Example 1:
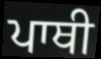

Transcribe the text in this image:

ਪਾਥੀ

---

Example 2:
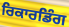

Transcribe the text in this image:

ਰਿਕਾਰਡਿੰਗ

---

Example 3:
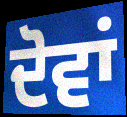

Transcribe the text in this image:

ਦੋਵਾਂ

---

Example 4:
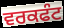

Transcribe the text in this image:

ਵਰਕਫੰਟ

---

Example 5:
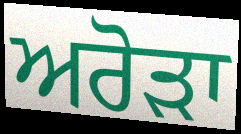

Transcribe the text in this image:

ਅਰੋੜਾ